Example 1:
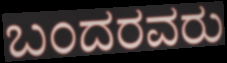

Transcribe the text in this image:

ಬಂದರವರು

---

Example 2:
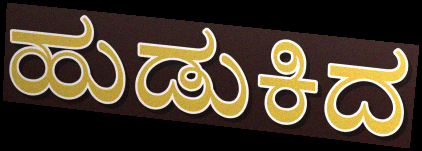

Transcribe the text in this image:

ಹುಡುಕಿದ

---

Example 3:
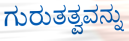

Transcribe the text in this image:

ಗುರುತತ್ವವನ್ನು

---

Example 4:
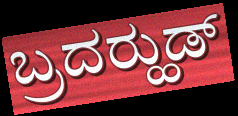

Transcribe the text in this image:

ಬ್ರದರ್‍ಹುಡ್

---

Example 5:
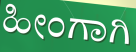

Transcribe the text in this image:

ಹೀಂಗಾಗಿ